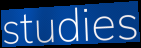
studies